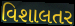
વિશાલતર